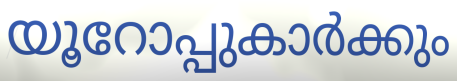
യൂറോപ്പുകാർക്കും